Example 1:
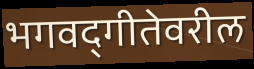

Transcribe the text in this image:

भगवद्‌गीतेवरील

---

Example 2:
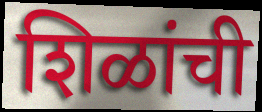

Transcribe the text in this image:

शिळांची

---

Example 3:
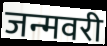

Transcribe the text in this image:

जन्मवरी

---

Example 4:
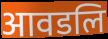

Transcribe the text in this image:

आवडलि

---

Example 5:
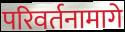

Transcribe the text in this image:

परिवर्तनामागे